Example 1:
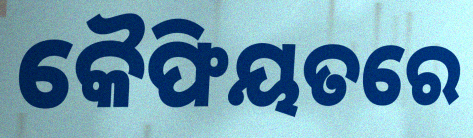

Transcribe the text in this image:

କୈଫିୟତରେ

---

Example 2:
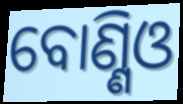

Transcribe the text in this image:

ବୋଣ୍ଣିଓ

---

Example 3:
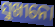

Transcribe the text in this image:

ସୁଖୀନୋ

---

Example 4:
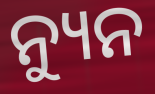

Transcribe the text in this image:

ନ୍ୟୁନ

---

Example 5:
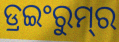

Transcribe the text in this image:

ଡ୍ରଇଂରୁମ୍‌ର